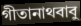
গীতানাথবাবু